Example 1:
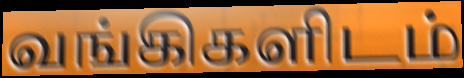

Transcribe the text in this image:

வங்கிகளிடம்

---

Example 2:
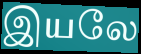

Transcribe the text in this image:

இயலே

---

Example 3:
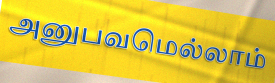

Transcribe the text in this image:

அனுபவமெல்லாம்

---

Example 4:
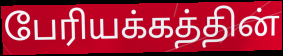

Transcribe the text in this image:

பேரியக்கத்தின்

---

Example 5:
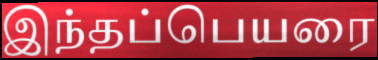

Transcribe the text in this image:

இந்தப்பெயரை